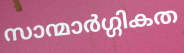
സാന്മാർഗ്ഗികത